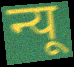
न्यू